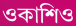
ওকাশিও